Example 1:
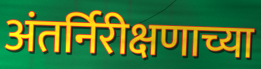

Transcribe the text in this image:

अंतर्निरीक्षणाच्या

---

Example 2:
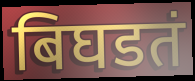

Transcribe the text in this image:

बिघडतं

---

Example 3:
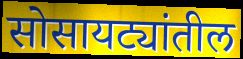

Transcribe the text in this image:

सोसायट्यांतील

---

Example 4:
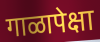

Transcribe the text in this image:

गाळापेक्षा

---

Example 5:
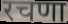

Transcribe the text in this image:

रचणा